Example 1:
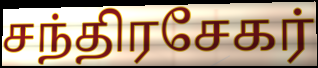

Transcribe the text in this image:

சந்திரசேகர்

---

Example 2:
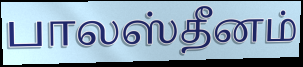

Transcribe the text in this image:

பாலஸ்தீனம்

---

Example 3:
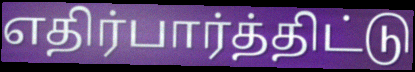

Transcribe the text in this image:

எதிர்பார்த்திட்டு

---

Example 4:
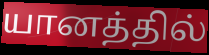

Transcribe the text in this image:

யானத்தில்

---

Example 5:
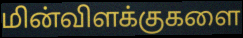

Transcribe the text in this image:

மின்விளக்குகளை